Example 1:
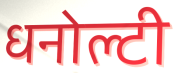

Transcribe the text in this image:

धनोल्‍टी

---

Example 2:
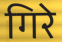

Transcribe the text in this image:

गिरे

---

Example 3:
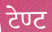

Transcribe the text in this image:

टेण्ट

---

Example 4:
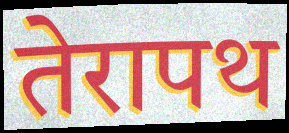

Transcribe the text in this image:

तेरापथ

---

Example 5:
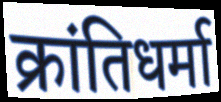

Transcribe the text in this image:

क्रांतिधर्मा